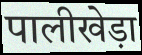
पालीखेड़ा